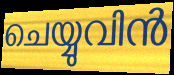
ചെയ്യുവിൻ